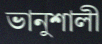
ভানুশালী